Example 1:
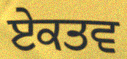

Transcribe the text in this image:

ਏਕਤਵ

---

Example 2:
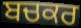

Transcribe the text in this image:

ਬਚਕਰ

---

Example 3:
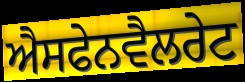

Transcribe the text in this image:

ਐਸਫੇਨਵੈਲਰੇਟ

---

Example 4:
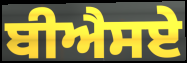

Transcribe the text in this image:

ਬੀਐਸਏ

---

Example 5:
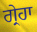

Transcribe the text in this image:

ਗ੍ਰੇਹਾ